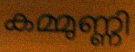
കമ്മുണ്ണി